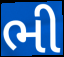
ભી